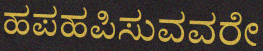
ಹಪಹಪಿಸುವವರೇ